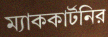
ম্যাককার্টনির